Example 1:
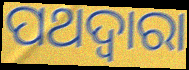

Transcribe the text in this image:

ପଥଦ୍ଵାରା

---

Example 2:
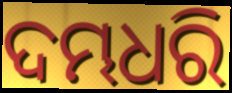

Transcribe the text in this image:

ଦମ୍ଭଧରି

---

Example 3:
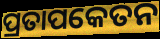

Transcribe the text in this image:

ପ୍ରତାପକେତନ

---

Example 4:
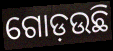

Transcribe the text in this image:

ଗୋଡ଼ଉଛି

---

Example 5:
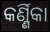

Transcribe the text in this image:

କର୍ଣ୍ଣିକା